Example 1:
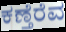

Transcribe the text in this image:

ಕಣ್ತೆರೆವ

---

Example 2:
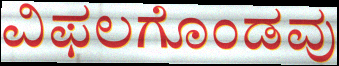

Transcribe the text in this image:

ವಿಫಲಗೊಂಡವು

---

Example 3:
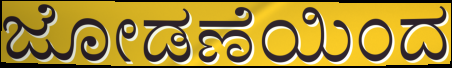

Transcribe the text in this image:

ಜೋಡಣೆಯಿಂದ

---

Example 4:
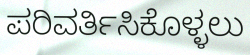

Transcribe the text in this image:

ಪರಿವರ್ತಿಸಿಕೊಳ್ಳಲು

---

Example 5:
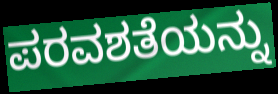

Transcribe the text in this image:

ಪರವಶತೆಯನ್ನು